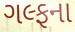
ગલ્ફના